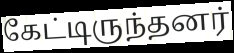
கேட்டிருந்தனர்